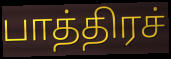
பாத்திரச்